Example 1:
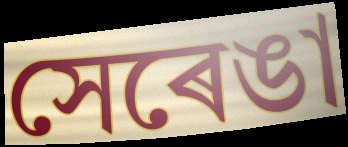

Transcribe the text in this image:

সেৰেঙা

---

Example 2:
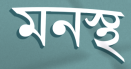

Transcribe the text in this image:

মনস্থ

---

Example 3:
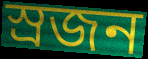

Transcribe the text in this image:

স্ৰজন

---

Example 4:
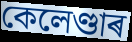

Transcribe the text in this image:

কেলেণ্ডাৰ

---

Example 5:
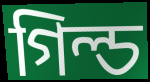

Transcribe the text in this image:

গিল্ড